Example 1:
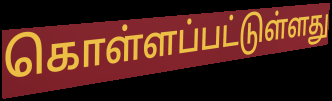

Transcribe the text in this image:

கொள்ளப்பட்டுள்ளது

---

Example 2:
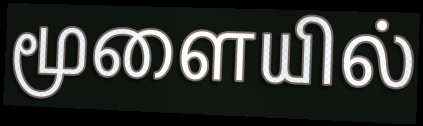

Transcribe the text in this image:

மூளையில்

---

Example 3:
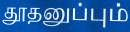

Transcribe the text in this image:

தூதனுப்பும்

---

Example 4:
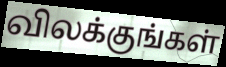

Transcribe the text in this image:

விலக்குங்கள்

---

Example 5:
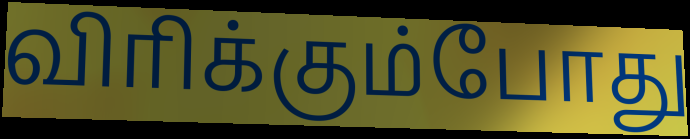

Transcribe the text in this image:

விரிக்கும்போது